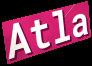
Atla